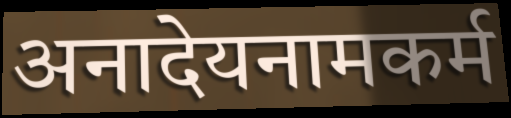
अनादेयनामकर्म